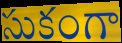
సుకంగా